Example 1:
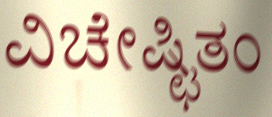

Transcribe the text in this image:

ವಿಚೇಷ್ಟಿತಂ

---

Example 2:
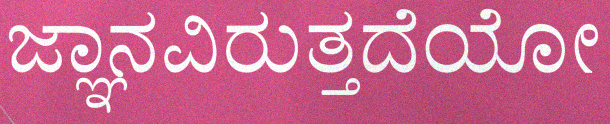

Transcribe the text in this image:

ಜ್ಞಾನವಿರುತ್ತದೆಯೋ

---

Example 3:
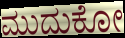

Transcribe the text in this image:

ಮುದುಕೋ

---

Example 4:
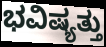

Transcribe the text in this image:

ಭವಿಷ್ಯತ್ತು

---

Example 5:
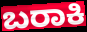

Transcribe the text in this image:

ಬರಾಕಿ